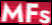
MFs